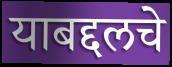
याबद्दलचे